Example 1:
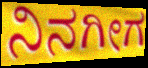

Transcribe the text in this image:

ನಿನಗೀಗ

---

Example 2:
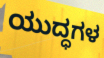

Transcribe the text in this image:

ಯುದ್ಧಗಳ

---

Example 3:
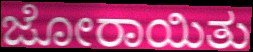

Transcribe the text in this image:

ಜೋರಾಯಿತು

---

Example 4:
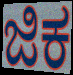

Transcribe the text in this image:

ಜಿಕ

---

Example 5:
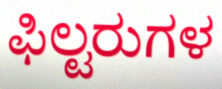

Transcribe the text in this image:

ಫಿಲ್ಟರುಗಳ